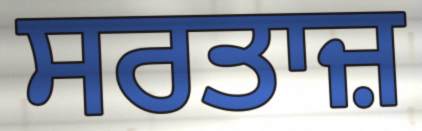
ਸਰਤਾਜ਼